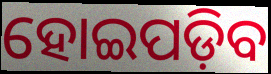
ହୋଇପଡ଼ିବ